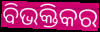
ବିଭକ୍ତିକର